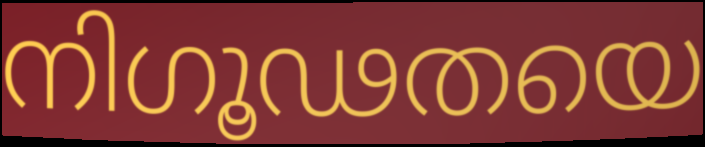
നിഗൂഢതയെ